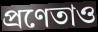
প্রণেতাও